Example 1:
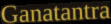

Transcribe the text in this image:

Ganatantra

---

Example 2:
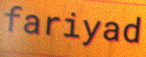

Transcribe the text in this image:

fariyad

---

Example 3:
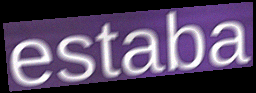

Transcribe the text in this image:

estaba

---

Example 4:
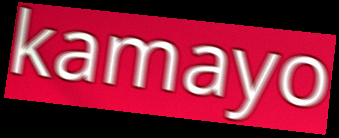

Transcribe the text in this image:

kamayo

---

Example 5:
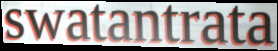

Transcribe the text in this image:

swatantrata